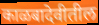
काळबादेवीतील